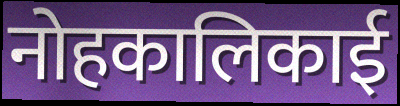
नोहकालिकाई